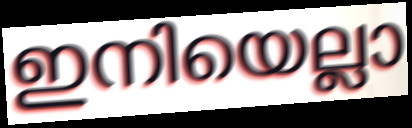
ഇനിയെല്ലാ